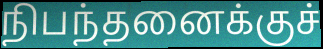
நிபந்தனைக்குச்